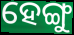
ହେଙ୍ଗୁ